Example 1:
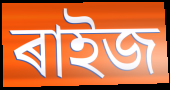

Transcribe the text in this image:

ৰাইজ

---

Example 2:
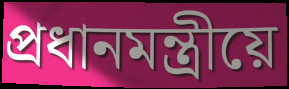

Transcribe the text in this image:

প্ৰধানমন্ত্ৰীয়ে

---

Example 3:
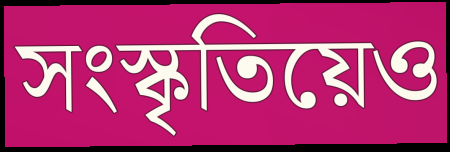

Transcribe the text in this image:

সংস্কৃতিয়েও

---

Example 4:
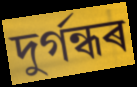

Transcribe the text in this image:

দুৰ্গন্ধৰ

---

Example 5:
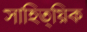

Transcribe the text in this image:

সাহিত্য়িক